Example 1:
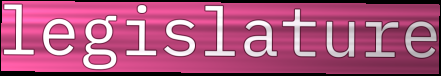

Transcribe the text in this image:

legislature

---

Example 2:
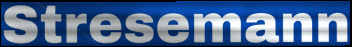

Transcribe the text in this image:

Stresemann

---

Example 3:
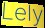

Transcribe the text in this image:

Lely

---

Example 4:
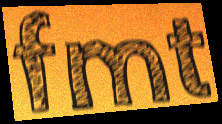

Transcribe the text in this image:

fmt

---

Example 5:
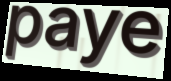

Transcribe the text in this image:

paye